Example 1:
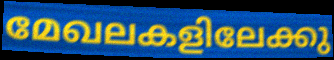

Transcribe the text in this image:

മേഖലകളിലേക്കു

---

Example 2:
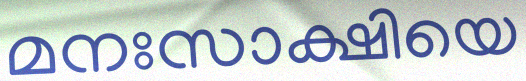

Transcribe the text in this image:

മനഃസാക്ഷിയെ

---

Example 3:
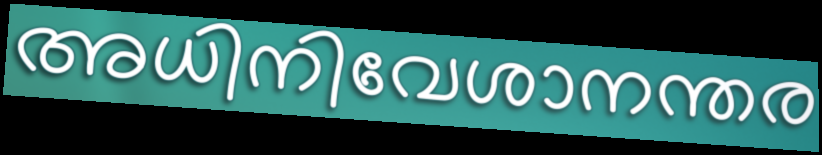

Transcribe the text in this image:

അധിനിവേശാനന്തര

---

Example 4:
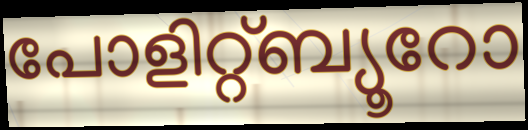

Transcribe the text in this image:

പോളിറ്റ്ബ്യൂറോ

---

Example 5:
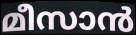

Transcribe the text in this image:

മീസാൻ